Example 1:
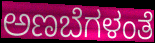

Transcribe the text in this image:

ಅಣಬೆಗಳಂತೆ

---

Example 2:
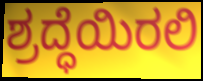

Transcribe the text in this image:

ಶ್ರದ್ಧೆಯಿರಲಿ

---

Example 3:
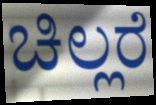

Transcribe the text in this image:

ಚಿಲ್ಲರೆ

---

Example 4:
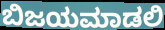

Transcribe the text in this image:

ಬಿಜಯಮಾಡಲಿ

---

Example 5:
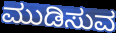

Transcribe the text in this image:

ಮುಡಿಸುವ